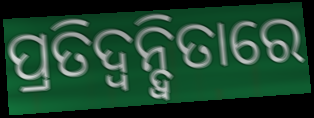
ପ୍ରତିଦ୍ୱନ୍ଦ୍ବିତାରେ